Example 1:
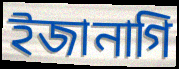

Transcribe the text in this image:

ইজানাগি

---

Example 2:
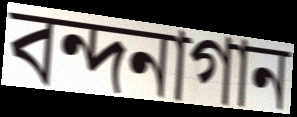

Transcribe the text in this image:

বন্দনাগান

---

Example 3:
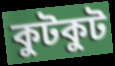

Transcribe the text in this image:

কুটকুট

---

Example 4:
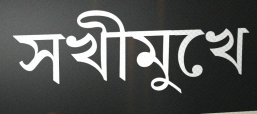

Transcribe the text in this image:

সখীমুখে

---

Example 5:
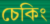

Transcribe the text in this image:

চেকিং